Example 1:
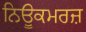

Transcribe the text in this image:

ਨਿਊਕਮਰਜ਼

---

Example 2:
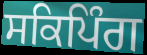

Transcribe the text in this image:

ਸਕਿਪਿੰਗ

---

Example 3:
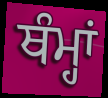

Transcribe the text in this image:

ਥੰਮ੍ਹਾਂ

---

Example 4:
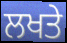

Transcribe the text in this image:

ਲਖਤੇ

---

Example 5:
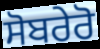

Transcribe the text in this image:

ਸੋਬਰੇਰੋ